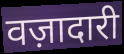
वज़ादारी